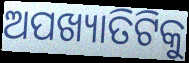
ଅପଖ୍ୟାତିଟିକୁ